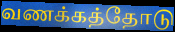
வணக்கத்தோடு